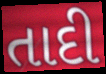
તાદી